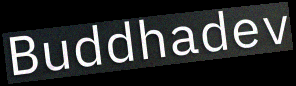
Buddhadev